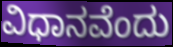
ವಿಧಾನವೆಂದು